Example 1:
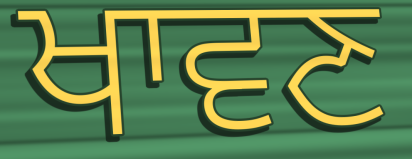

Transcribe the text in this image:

ਖਾਵਣ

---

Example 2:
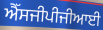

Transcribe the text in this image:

ਐੱਸਜੀਪੀਜੀਆਈ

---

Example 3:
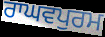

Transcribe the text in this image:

ਰਾਘਵਪੁਰਮ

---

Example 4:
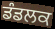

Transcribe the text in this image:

ਡੰਡਲਕ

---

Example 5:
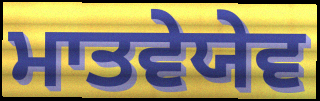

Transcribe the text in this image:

ਮਾਤਵੇਯੇਵ